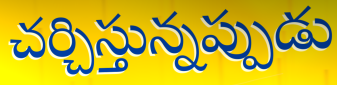
చర్చిస్తున్నప్పుడు